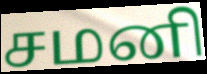
சமனி